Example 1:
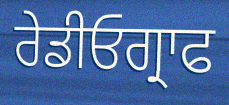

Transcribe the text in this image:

ਰੇਡੀਓਗ੍ਰਾਫ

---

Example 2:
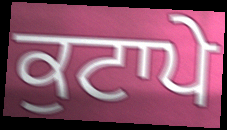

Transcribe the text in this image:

ਕੁਟਾਪੇ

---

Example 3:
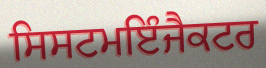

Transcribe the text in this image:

ਸਿਸਟਮਇੰਜੈਕਟਰ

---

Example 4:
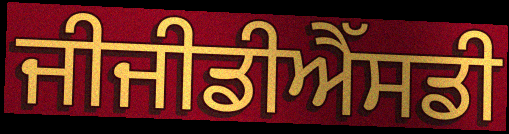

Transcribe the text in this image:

ਜੀਜੀਡੀਐੱਸਡੀ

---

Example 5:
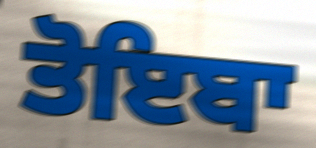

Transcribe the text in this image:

ਤੋਇਬਾ